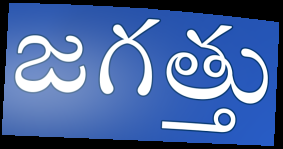
జగత్తు